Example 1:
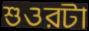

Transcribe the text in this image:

শুওরটা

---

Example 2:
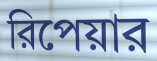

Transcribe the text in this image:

রিপেয়ার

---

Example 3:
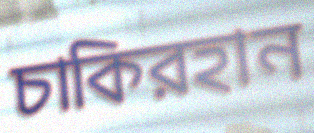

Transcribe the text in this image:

চাকিরহান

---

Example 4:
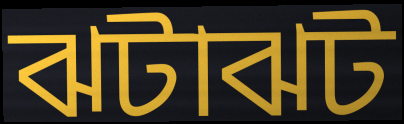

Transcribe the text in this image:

ঝটাঝট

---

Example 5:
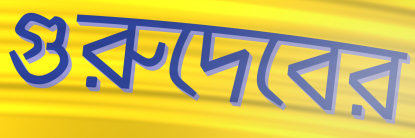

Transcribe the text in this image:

গুরুদেবের